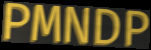
PMNDP